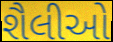
શૈલીઓ